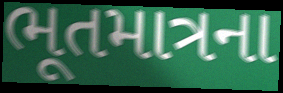
ભૂતમાત્રના